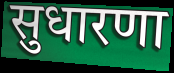
सुधारणा